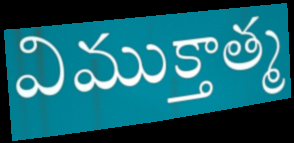
విముక్తాత్మ